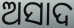
ଅସାଦ